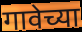
गावेच्या